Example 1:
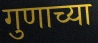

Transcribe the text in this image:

गुणाच्या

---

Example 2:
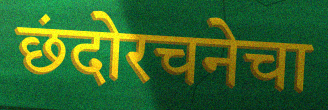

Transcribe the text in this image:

छंदोरचनेचा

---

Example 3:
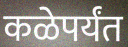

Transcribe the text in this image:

कळेपर्यंत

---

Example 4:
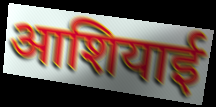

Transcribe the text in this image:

आशियाई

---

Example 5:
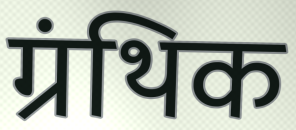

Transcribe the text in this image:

ग्रंथिक